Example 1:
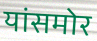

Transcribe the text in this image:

यांसमोर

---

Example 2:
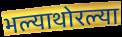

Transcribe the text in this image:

भल्याथोरल्या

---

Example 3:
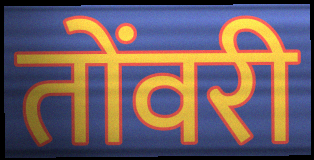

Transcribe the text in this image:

तोंवरी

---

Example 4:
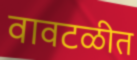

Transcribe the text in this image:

वावटळीत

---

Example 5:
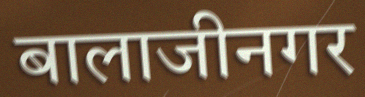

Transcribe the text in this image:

बालाजीनगर